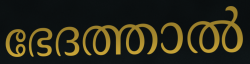
ഭേദത്താൽ